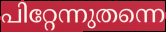
പിറ്റേന്നുതന്നെ